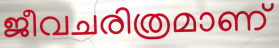
ജീവചരിത്രമാണ്